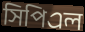
সিপিএল